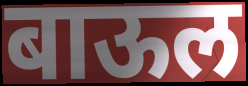
बाऊल